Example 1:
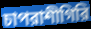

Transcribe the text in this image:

চাপরাশীগিরি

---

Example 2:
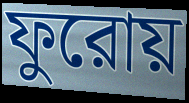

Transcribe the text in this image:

ফুরোয়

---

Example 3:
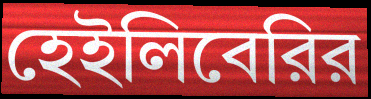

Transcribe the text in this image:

হেইলিবেরির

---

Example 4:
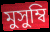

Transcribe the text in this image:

মুসুম্বি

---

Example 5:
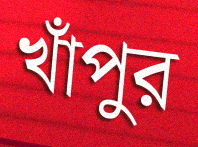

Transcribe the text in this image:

খাঁপুর